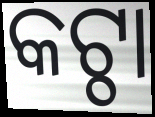
କଟ୍ଠା